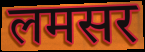
लमसर